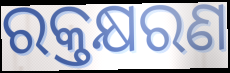
ରକ୍ତକ୍ଷରଣ